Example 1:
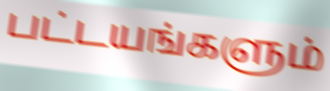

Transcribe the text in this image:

பட்டயங்களும்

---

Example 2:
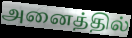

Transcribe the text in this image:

அனைத்தில்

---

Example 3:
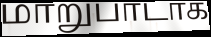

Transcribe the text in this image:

மாறுபாடாக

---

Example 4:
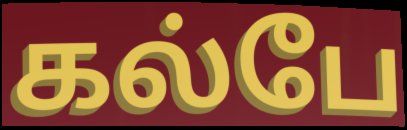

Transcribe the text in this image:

கல்பே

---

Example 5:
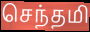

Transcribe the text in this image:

செந்தமி